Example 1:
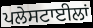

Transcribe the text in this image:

ਪਲੇਸਟਾਈਲਾਂ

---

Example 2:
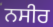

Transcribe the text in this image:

ਨਸੀਰ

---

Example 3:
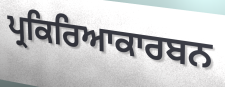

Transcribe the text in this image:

ਪ੍ਰਕਿਰਿਆਕਾਰਬਨ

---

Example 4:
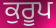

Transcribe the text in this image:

ਕੁਰੂਪ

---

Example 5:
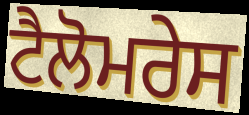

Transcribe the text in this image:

ਟੈਲੋਮਰੇਸ